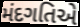
મંદગતિએ